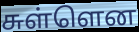
சுள்ளென